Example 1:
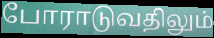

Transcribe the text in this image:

போராடுவதிலும்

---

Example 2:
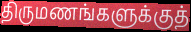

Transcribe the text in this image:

திருமணங்களுக்குத்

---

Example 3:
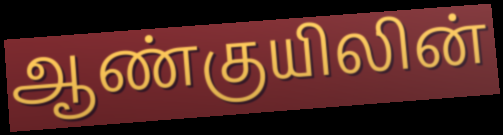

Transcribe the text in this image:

ஆண்குயிலின்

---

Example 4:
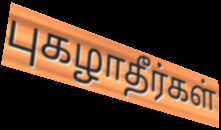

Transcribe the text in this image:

புகழாதீர்கள்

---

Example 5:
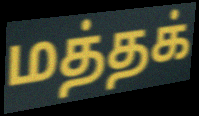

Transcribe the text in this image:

மத்தக்